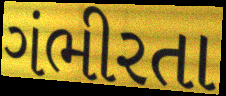
ગંભીરતા